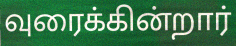
வுரைக்கின்றார்